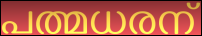
പത്മധരന്